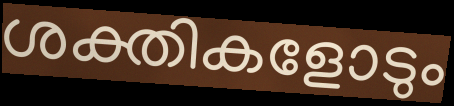
ശക്തികളോടും